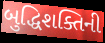
બુદ્ધિશક્તિની